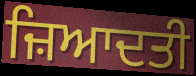
ਜ਼ਿਆਦਤੀ